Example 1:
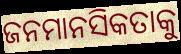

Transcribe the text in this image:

ଜନମାନସିକତାକୁ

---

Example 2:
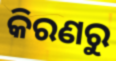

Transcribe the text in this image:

କିରଣରୁ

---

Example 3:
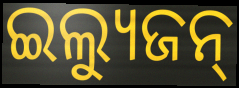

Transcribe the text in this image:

ଇଲ୍ୟୁଜନ୍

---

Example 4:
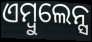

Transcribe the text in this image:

ଏମ୍ବୁଲେନ୍ସ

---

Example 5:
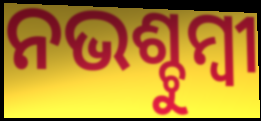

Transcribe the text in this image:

ନଭଶ୍ଚୁମ୍ବୀ